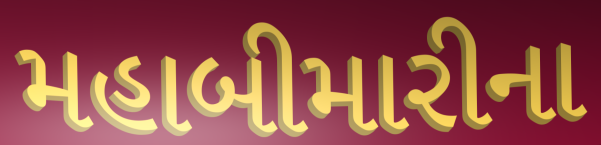
મહાબીમારીના